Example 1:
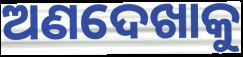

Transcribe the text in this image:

ଅଣଦେଖାକୁ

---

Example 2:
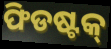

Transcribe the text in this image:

ଫିଡଷ୍ଟକ୍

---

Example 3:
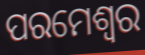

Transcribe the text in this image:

ପରମେଶ୍ବର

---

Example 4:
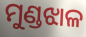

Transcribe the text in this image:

ମୁଣ୍ଡଝାଳ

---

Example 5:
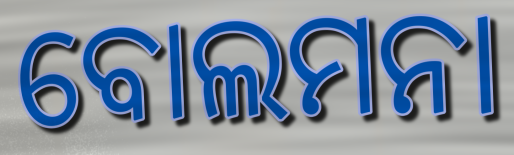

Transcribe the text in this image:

ବୋଲମନା